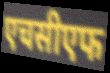
एचसीएफ